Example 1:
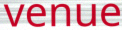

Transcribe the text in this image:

venue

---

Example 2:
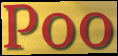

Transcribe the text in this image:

Poo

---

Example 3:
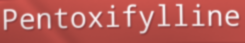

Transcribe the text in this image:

Pentoxifylline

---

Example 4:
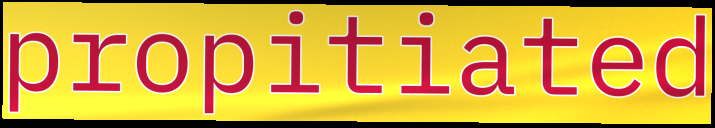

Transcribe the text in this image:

propitiated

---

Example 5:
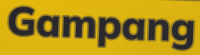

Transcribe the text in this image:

Gampang